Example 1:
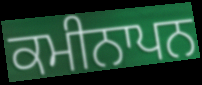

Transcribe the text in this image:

ਕਮੀਨਾਪਨ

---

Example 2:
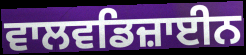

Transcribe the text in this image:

ਵਾਲਵਡਿਜ਼ਾਈਨ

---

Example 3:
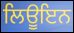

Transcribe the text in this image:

ਲਿਊਇਨ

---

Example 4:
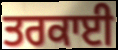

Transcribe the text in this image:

ਤਰਕਾਈ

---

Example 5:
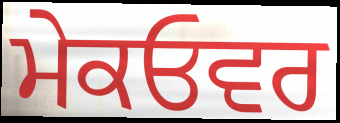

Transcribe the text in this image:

ਮੇਕਓਵਰ